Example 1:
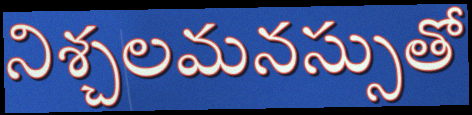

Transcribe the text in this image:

నిశ్చలమనస్సుతో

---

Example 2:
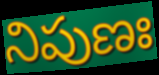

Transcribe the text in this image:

నిపుణః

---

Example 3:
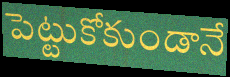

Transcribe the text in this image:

పెట్టుకోకుండానే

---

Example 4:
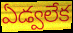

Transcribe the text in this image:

ఏడ్వలేక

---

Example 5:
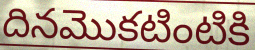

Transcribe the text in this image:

దినమొకటింటికి